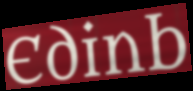
Edinb